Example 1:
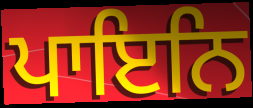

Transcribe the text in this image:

ਪਾਇਨਿ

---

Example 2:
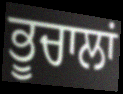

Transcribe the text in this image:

ਭੂਚਾਲਾਂ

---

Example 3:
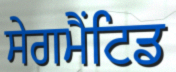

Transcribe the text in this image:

ਸੇਗਮੈਂਟਿਡ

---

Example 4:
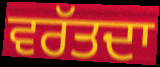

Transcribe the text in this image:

ਵਰੱਤਦਾ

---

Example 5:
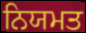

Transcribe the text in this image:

ਨਿਯਮਤ